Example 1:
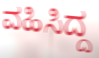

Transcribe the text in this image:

ವಹಿಸಿದ್ದ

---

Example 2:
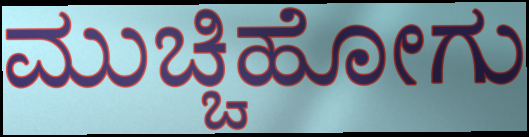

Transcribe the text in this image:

ಮುಚ್ಚಿಹೋಗು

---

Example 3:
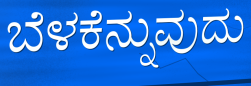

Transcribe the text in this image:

ಬೆಳಕೆನ್ನುವುದು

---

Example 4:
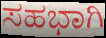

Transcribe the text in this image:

ಸಹಭಾಗಿ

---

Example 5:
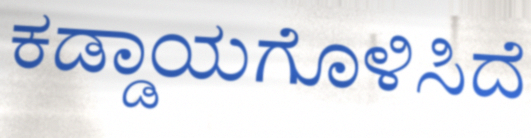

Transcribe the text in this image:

ಕಡ್ಡಾಯಗೊಳಿಸಿದೆ